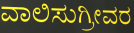
ವಾಲಿಸುಗ್ರೀವರ